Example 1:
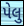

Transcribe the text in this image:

પેલુ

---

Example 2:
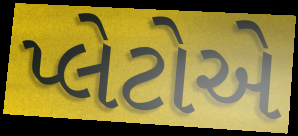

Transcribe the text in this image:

પ્લેટોએ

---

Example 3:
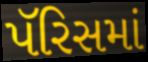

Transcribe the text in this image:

પૅરિસમાં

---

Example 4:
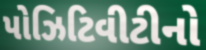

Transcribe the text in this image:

પોઝિટિવીટીનો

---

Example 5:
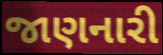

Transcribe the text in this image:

જાણનારી